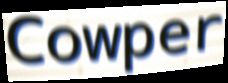
Cowper